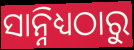
ସାନ୍ନିଧ୍ୟଠାରୁ